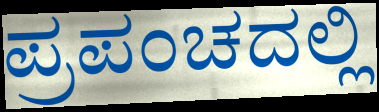
ಪ್ರಪಂಚದಲ್ಲಿ